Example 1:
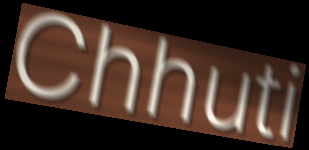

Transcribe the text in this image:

Chhuti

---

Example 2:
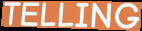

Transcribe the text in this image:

TELLING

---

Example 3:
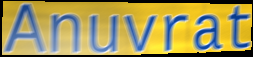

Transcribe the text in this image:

Anuvrat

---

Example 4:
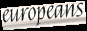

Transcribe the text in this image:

europeans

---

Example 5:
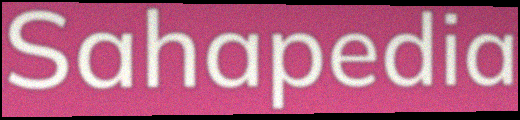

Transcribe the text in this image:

Sahapedia